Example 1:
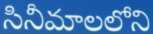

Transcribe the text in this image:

సినీమాలలోని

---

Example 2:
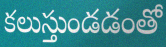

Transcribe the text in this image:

కలుస్తుండడంతో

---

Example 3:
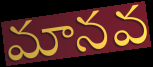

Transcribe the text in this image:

మానవ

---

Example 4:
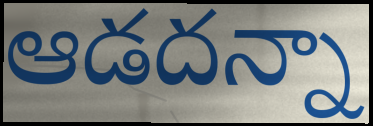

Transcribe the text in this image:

ఆడదన్నా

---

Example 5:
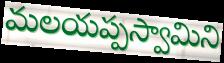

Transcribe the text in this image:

మలయప్పస్వామిని